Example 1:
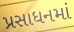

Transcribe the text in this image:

પ્રસાધનમાં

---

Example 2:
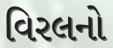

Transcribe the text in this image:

વિરલનો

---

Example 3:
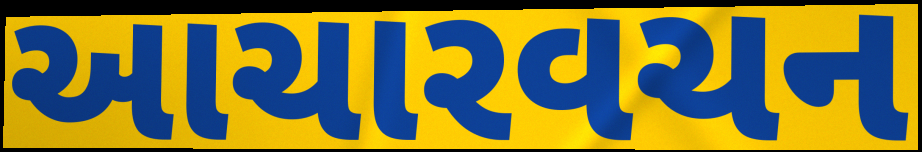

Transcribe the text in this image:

આચારવચન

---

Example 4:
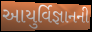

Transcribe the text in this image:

આયુર્વિજ્ઞાનની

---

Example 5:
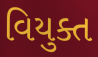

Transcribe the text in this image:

વિયુક્ત